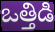
ఒత్తిడి